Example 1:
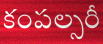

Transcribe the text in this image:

కంపల్సరీ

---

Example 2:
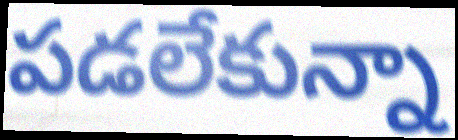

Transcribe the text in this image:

పడలేకున్నా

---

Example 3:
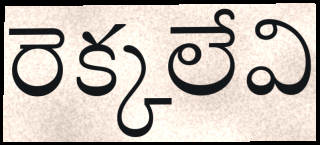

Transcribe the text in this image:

రెక్కలేవి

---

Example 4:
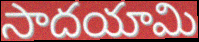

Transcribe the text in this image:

సాదయామి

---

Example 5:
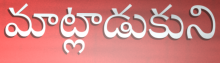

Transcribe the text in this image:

మాట్లాడుకుని